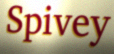
Spivey